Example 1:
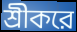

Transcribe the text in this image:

শ্রীকরে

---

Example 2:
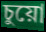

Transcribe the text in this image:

চুয়ো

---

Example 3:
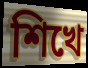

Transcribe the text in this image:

শিখে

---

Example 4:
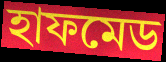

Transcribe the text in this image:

হাফমেড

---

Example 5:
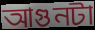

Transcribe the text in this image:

আগুনটা